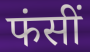
फंसीं